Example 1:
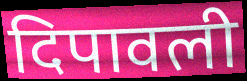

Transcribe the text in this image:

दिपावली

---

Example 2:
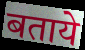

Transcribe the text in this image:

बताये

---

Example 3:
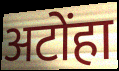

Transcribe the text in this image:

अटोंहा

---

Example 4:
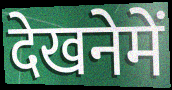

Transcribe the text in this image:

देखनेमें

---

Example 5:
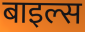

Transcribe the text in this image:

बाइल्स